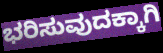
ಭರಿಸುವುದಕ್ಕಾಗಿ